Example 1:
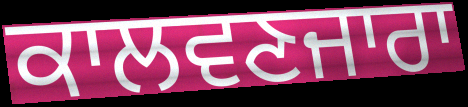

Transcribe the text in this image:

ਕਾਲਵਣਜਾਰਾ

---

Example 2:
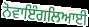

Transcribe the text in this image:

ਨੋਵਾਇੰਗਲਿਆਈ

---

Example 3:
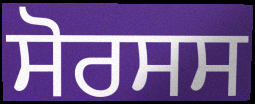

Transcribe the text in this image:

ਸੋਰਸਸ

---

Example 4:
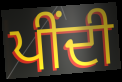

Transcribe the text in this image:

ਪੀਂਦੀ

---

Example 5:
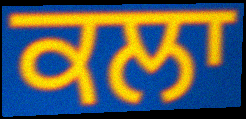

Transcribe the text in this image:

ਕਲਾ